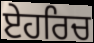
ਏਹਰਿਚ